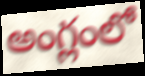
అంగ్లంలో